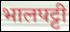
भालपट्टी